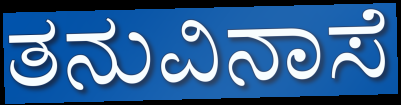
ತನುವಿನಾಸೆ